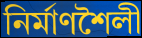
নিৰ্মাণশৈলী